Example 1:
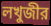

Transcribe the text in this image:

লখুজীর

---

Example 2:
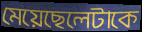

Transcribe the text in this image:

মেয়েছেলেটাকে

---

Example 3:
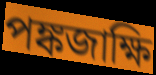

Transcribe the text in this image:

পঙ্কজাক্ষি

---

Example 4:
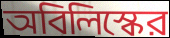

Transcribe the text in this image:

অবিলিস্কের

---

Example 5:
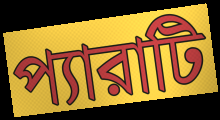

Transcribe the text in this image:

প্যারাটি